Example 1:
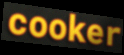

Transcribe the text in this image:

cooker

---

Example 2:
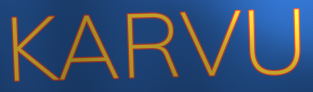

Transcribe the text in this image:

KARVU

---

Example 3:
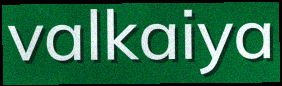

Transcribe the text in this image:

valkaiya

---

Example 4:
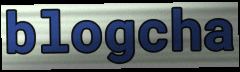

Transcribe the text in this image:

blogcha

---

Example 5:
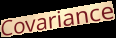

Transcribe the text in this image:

Covariance